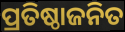
ପ୍ରତିଷ୍ଠାଜନିତ